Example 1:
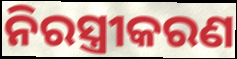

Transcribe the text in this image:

ନିରସ୍ତ୍ରୀକରଣ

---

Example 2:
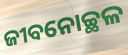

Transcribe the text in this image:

ଜୀବନୋଚ୍ଛଳ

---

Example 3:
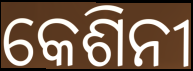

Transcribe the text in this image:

କେଶିନୀ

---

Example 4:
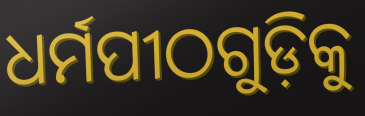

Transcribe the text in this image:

ଧର୍ମପୀଠଗୁଡ଼ିକୁ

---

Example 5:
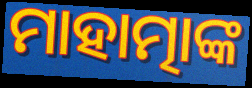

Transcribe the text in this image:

ମାହାତ୍ମାଙ୍କ